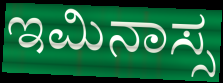
ಇಮಿನಾಸ್ಸ